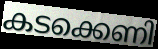
കടക്കെണി